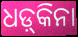
ଧଡ଼୍‍କିନା